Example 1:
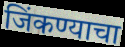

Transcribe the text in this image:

जिंकण्याचा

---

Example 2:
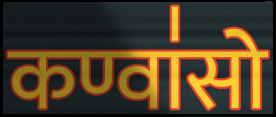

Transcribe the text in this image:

कण्वा॑सो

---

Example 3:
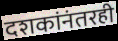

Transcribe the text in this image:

दशकांनंतरही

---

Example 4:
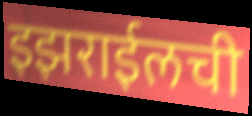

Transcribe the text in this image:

इझराईलची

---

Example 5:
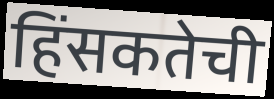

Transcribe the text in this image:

हिंसकतेची